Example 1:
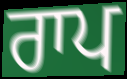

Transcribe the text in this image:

ਰਾਪ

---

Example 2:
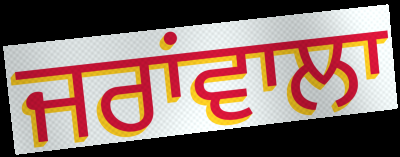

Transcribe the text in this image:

ਜਰਾਂਵਾਲਾ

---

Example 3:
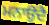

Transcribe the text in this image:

ਮਨਾਉਂਦੈ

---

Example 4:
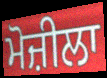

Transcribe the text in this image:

ਮੋਜ਼ੀਲਾ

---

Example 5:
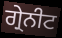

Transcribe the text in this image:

ਗ੍ਰੇਨੀਟ